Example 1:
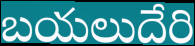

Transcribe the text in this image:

బయలుదేరి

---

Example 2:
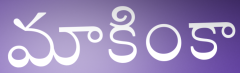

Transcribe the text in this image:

మాకింకా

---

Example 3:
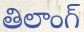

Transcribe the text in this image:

తిలాంగ్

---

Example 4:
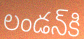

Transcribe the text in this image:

లండన్‌కి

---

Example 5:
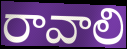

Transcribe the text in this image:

రావాలి